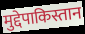
मुद्देपाकिस्तान